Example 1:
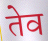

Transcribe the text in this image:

तेव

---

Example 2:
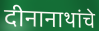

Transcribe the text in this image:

दीनानाथांचे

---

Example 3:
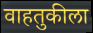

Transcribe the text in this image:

वाहतुकीला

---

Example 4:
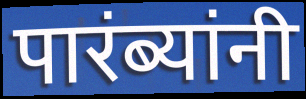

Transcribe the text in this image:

पारंब्यांनी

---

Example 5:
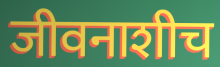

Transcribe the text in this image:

जीवनाशीच